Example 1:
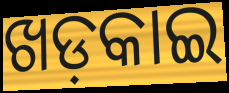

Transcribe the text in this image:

ଖଡ଼କାଇ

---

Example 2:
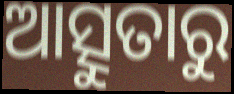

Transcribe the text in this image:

ଆତ୍ସୁତାରୁ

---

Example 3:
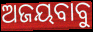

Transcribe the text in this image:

ଅଜୟବାବୁ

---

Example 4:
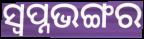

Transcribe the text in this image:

ସ୍ୱପ୍ନଭଙ୍ଗର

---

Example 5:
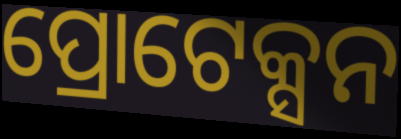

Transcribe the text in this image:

ପ୍ରୋଟେକ୍ସନ